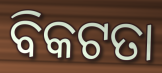
ବିକଟତା